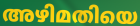
അഴിമതിയെ